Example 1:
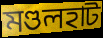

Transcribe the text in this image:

মণ্ডলহাট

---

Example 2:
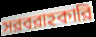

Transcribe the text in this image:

সরবরাহকারি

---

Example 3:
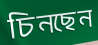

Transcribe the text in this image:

চিনছেন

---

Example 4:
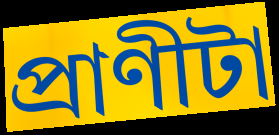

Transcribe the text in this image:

প্রাণীটা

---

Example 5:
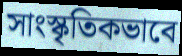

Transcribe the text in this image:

সাংস্কৃতিকভাবে